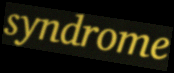
syndrome